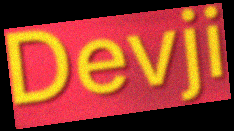
Devji